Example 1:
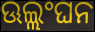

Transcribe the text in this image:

ଊଲ୍ଲଂଘନ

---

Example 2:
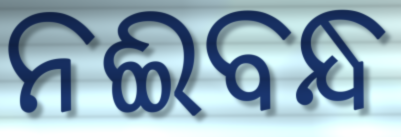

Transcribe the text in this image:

ନଈବନ୍ଧ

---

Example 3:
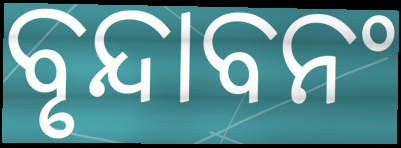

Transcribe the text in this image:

ବୃନ୍ଦାବନଂ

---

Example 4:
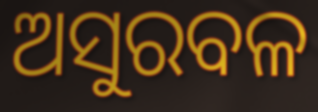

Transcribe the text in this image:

ଅସୁରବଳ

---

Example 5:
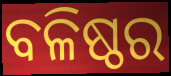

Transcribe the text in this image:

ବଳିଷ୍ଠର